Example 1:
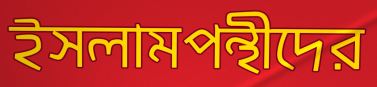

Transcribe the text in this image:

ইসলামপন্থীদের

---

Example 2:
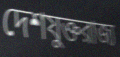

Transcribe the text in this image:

দেশযুক্তরাজ্য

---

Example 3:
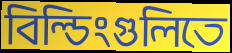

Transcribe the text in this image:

বিল্ডিংগুলিতে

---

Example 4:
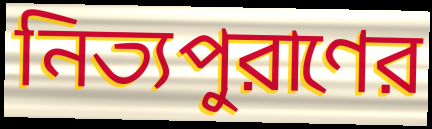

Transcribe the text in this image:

নিত্যপুরাণের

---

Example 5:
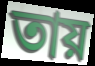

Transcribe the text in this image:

তায়